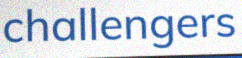
challengers